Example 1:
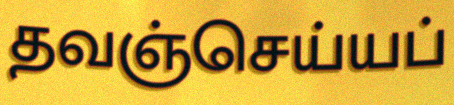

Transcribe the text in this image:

தவஞ்செய்யப்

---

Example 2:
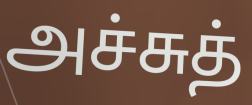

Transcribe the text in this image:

அச்சுத்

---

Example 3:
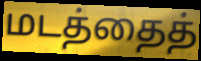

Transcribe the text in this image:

மடத்தைத்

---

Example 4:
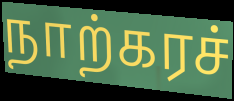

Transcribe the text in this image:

நாற்கரச்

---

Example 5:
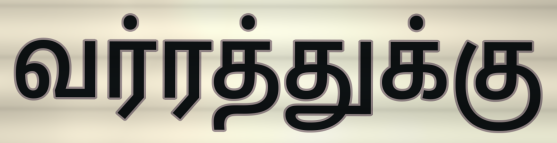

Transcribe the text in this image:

வர்ரத்துக்கு